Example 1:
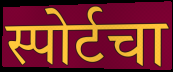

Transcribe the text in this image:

स्पोर्टचा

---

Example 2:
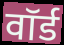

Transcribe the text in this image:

वॉर्ड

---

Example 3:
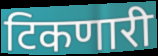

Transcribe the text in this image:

टिकणारी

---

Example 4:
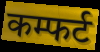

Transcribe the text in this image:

कम्फर्ट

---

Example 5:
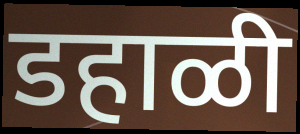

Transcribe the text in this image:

डहाळी